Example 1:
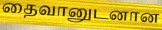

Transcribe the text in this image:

தைவானுடனான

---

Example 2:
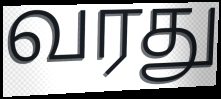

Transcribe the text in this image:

வரது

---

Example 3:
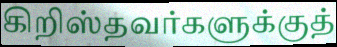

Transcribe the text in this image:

கிறிஸ்தவர்களுக்குத்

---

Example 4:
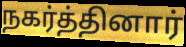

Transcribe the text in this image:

நகர்த்தினார்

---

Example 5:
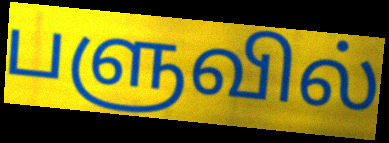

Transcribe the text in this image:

பளுவில்